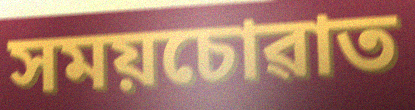
সময়চোৱাত